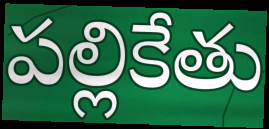
పల్లికేతు